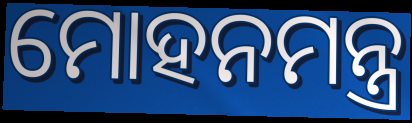
ମୋହନମନ୍ତ୍ର